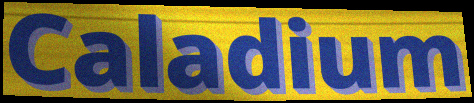
Caladium